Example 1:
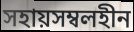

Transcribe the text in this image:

সহায়সম্বলহীন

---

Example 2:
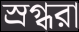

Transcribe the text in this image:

স্রগ্ধরা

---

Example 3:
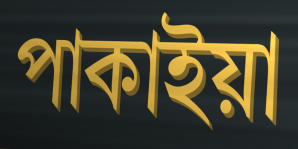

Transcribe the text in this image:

পাকাইয়া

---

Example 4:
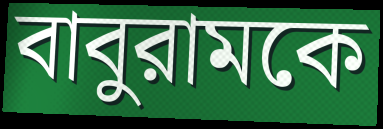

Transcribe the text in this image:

বাবুরামকে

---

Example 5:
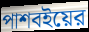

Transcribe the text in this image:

পাশবইয়ের